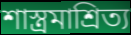
শাস্ত্রমাশ্রিত্য